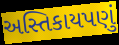
અસ્તિકાયપણું